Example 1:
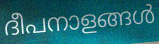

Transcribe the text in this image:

ദീപനാളങ്ങൾ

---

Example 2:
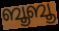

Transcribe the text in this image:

ബൂബൂ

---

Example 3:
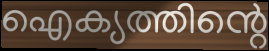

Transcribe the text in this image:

ഐക്യത്തിന്റെ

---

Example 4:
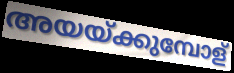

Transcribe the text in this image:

അയയ്ക്കുമ്പോള്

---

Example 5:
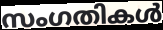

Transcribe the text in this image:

സംഗതികൾ